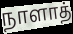
நாளாத்